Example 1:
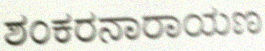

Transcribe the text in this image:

ಶಂಕರನಾರಾಯಣ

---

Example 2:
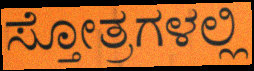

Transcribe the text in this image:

ಸ್ತೋತ್ರಗಳಲ್ಲಿ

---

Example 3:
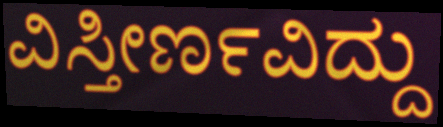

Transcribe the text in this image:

ವಿಸ್ತೀರ್ಣವಿದ್ದು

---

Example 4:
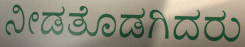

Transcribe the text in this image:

ನೀಡತೊಡಗಿದರು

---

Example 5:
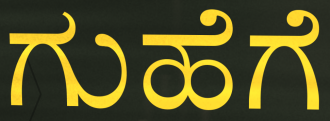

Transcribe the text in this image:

ಗುಹೆಗೆ